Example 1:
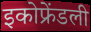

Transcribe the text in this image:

इकोफ्रेंडली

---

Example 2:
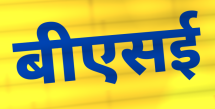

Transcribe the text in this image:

बीएसई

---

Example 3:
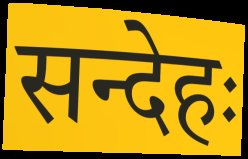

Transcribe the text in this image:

सन्देहः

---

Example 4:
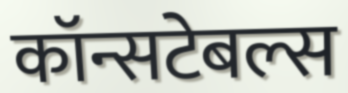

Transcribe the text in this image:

कॉन्सटेबल्स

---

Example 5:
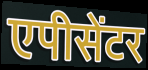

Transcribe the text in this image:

एपीसेंटर